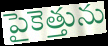
పైకెత్తును